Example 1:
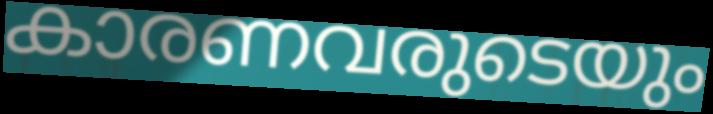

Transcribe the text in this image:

കാരണവരുടെയും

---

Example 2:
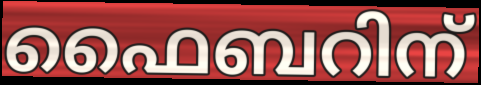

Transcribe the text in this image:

ഫൈബറിന്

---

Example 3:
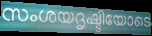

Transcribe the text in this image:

സംശയദൃഷ്ടിയോടെ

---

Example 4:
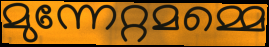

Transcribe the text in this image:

മുന്നേറ്റമമ്മെ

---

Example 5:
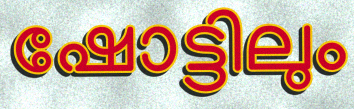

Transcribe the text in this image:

ഷോട്ടിലും